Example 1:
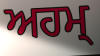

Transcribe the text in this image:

ਅਹਮ੍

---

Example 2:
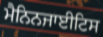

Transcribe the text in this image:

ਮੈਨਿਨਜਾਈਟਿਸ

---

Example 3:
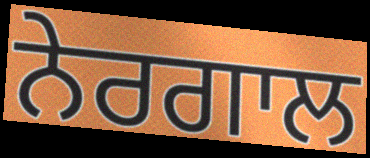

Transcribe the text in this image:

ਨੇਰਗਾਲ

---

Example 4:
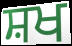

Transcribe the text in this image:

ਸ਼ਖ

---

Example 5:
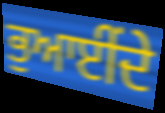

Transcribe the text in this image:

ਭੁਆਈਂਦੇ